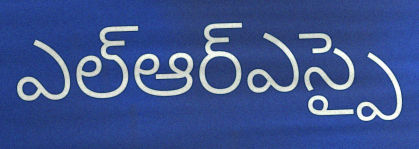
ఎల్ఆర్ఎస్పై